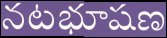
నటభూషణ